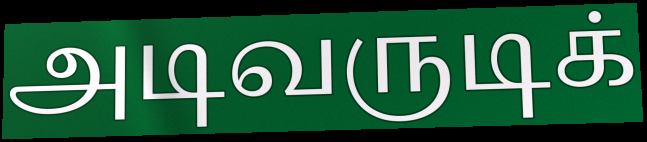
அடிவருடிக்